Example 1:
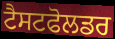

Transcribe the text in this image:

ਟੈਸਟਫੋਲਡਰ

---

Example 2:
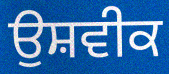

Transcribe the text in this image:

ਉਸ਼ਵੀਕ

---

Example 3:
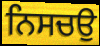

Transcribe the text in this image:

ਨਿਸਚਉ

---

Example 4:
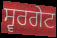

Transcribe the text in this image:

ਸ੍ਵਰਗੇਟ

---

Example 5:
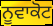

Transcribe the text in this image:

ਨੂਵਾਕੋਟ